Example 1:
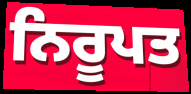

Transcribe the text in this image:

ਨਿਰੂਪਤ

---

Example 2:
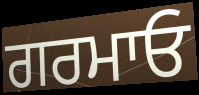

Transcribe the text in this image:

ਗਰਮਾਓ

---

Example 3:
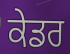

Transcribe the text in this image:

ਕੇਡਰ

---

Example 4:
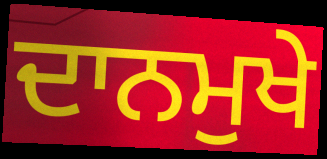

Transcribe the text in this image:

ਦਾਨਮੁਖੇ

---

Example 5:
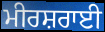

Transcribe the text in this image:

ਮੀਰਸ਼ਰਾਈ